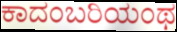
ಕಾದಂಬರಿಯಂಥ